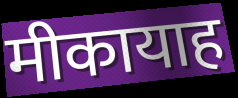
मीकायाह